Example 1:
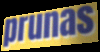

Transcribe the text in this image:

prunas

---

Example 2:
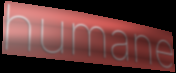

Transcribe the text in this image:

humane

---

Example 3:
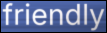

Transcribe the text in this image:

friendly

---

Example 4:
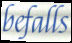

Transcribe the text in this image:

befalls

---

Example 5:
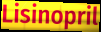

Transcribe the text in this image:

Lisinopril